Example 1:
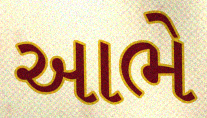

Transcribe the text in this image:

આભે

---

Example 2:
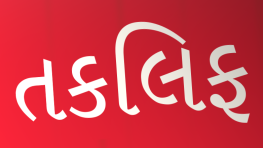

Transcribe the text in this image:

તકલિફ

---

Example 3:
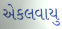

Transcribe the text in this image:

એકલવાયુ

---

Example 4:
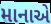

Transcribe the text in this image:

માનાએ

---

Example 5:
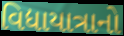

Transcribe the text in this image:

વિદ્યાયાત્રાનો